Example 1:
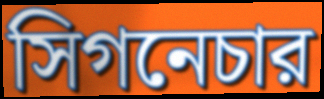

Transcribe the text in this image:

সিগনেচার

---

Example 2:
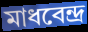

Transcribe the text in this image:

মাধবেন্দ্র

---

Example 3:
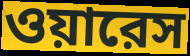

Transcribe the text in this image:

ওয়ারেস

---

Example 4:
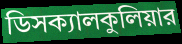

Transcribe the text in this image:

ডিসক্যালকুলিয়ার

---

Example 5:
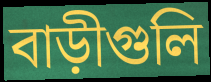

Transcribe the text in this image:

বাড়ীগুলি